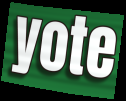
yote